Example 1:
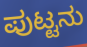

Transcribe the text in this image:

ಪುಟ್ಟನು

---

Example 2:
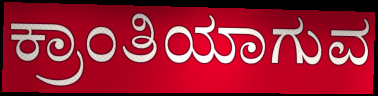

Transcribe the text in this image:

ಕ್ರಾಂತಿಯಾಗುವ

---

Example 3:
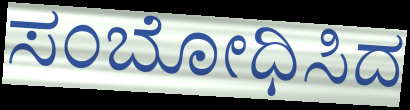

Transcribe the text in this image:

ಸಂಬೋಧಿಸಿದ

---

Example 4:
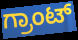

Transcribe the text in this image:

ಗ್ರಾಂಟ್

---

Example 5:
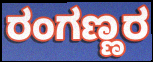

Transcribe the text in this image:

ರಂಗಣ್ಣರ